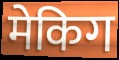
मेकिग